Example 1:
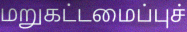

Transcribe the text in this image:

மறுகட்டமைப்புச்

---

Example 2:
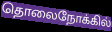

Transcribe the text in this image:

தொலைநோக்கில்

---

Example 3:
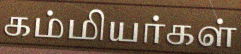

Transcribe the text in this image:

கம்மியர்கள்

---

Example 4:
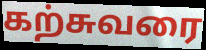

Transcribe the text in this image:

கற்சுவரை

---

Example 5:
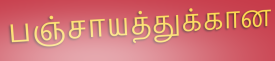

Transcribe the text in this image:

பஞ்சாயத்துக்கான